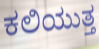
ಕಲಿಯುತ್ತ